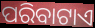
ପରିବାଟାଏ